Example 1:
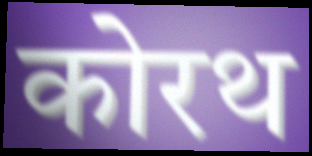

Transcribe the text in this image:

कोरथ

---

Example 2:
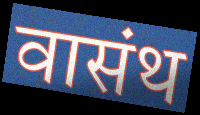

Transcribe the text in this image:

वासंथ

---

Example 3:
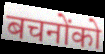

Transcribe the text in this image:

बचनोंको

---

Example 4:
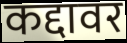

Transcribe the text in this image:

कद्दावर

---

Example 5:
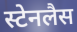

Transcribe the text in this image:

स्टेनलैस